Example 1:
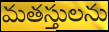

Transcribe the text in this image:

మతస్తులను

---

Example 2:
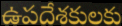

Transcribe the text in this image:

ఉపదేశకులకు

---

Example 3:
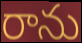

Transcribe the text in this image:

రాను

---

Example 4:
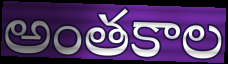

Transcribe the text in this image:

అంతకాల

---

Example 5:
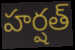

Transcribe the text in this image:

హర్షత్